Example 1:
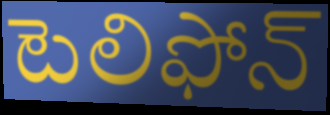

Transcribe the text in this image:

టెలిఫోన్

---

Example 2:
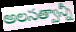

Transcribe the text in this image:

అలసత్వాన్నీ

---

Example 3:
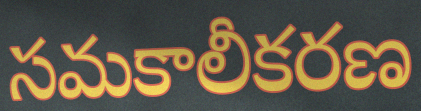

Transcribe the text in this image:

సమకాలీకరణ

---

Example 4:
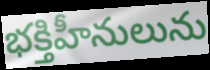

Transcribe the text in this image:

భక్తిహీనులును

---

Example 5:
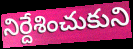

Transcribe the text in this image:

నిర్దేశించుకుని